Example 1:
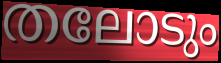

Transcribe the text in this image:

തലോടും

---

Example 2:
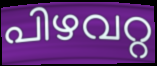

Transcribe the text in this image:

പിഴവറ്റ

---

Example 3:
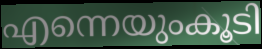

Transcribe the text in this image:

എന്നെയുംകൂടി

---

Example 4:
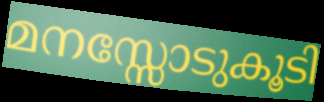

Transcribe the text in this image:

മനസ്സോടുകൂടി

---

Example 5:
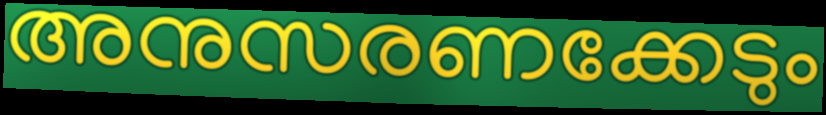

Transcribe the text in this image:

അനുസരണക്കേടും